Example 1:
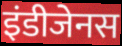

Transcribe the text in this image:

इंडीजेनस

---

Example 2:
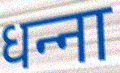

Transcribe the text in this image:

धन्ना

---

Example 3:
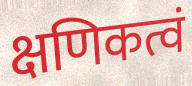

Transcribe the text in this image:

क्षणिकत्वं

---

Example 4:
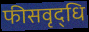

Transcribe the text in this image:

फीसवृद्धि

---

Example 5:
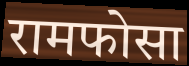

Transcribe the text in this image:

रामफोसा